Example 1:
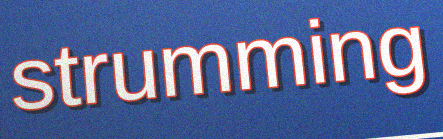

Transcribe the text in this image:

strumming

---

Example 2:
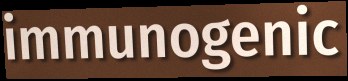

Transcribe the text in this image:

immunogenic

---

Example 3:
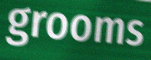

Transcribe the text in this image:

grooms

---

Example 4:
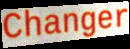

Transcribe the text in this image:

Changer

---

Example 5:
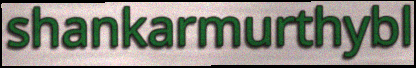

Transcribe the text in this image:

shankarmurthybl